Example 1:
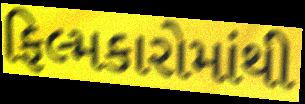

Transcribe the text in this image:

ફિલ્મકારોમાંથી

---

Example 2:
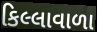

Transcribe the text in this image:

કિલ્લાવાળા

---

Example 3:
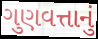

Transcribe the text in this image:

ગુણવત્તાનું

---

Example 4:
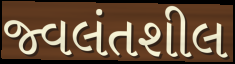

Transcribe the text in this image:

જ્વલંતશીલ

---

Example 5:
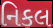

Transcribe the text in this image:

નિકલ